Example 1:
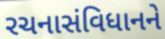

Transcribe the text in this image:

રચનાસંવિધાનને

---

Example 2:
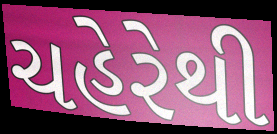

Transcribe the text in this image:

ચહેરેથી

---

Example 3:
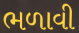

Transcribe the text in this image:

ભળાવી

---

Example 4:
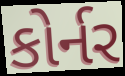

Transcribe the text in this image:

કોર્નર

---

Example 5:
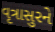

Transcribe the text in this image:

વૃત્રાસુરને